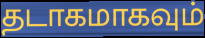
தடாகமாகவும்